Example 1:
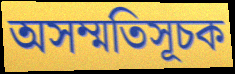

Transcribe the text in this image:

অসম্মতিসূচক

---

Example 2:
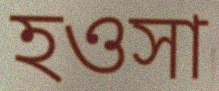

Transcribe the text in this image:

হওসা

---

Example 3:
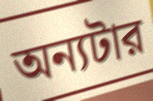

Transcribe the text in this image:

অন্যটার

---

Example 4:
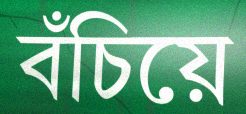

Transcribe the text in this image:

বঁচিয়ে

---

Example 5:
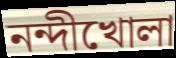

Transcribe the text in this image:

নন্দীখোলা